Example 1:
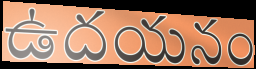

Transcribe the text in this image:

ఉదయనం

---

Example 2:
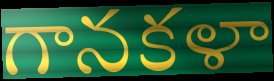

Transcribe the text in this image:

గానకళా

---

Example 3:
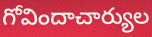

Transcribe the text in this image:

గోవిందాచార్యుల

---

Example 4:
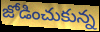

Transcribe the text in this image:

జోడించుకున్న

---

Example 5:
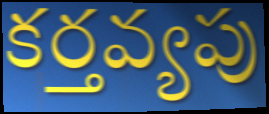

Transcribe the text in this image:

కర్తవ్యపు